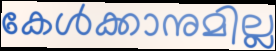
കേൾക്കാനുമില്ല